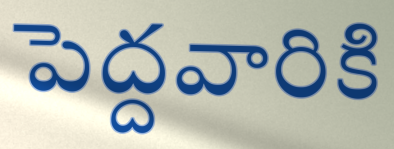
పెద్దవారికి